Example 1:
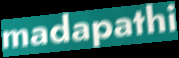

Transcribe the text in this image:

madapathi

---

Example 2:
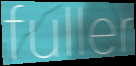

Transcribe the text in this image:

fuller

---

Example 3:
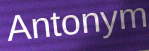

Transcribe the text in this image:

Antonym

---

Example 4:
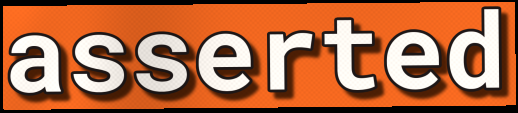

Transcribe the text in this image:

asserted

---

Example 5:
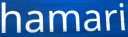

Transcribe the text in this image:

hamari